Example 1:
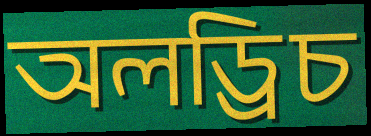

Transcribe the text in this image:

অলড্রিচ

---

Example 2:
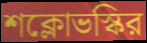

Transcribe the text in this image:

শক্লোভস্কির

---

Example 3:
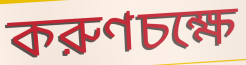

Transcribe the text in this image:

করুণচক্ষে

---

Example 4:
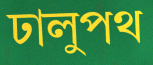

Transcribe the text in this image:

ঢালুপথ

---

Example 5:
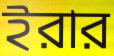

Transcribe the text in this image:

ইরার